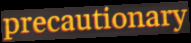
precautionary